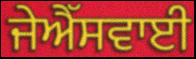
ਜੇਐੱਸਵਾਈ